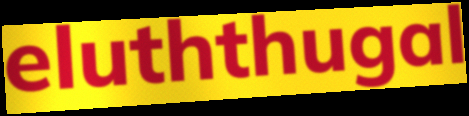
eluththugal